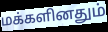
மக்களினதும்